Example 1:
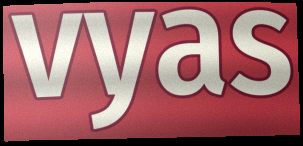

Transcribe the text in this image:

vyas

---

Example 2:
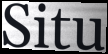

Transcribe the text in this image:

Situ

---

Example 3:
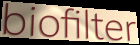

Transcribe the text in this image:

biofilter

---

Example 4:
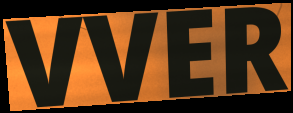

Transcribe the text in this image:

VVER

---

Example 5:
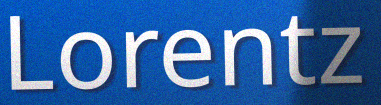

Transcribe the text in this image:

Lorentz